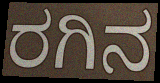
ರಗಿನ